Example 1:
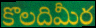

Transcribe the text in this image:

కొలదిమీర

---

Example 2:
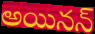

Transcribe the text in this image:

అయినన్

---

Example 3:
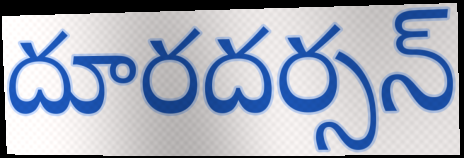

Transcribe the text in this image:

దూరదర్సన్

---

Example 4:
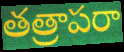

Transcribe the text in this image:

తత్రాపరా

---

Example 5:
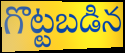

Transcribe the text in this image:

గొట్టబడిన